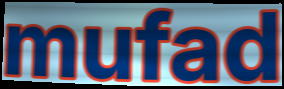
mufad